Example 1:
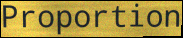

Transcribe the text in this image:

Proportion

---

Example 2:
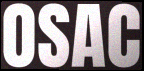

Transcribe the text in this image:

OSAC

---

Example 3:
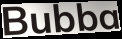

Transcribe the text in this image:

Bubba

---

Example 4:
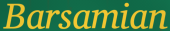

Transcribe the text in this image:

Barsamian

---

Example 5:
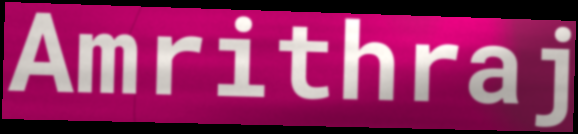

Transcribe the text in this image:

Amrithraj